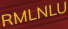
RMLNLU